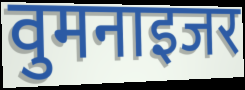
वुमनाइजर